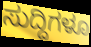
ಸುದ್ದಿಗಳೂ